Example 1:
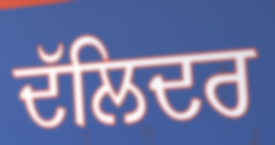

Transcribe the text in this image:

ਦੱਲਿਦਰ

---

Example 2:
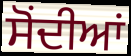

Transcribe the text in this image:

ਸੋਂਦੀਆਂ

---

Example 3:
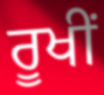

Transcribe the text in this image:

ਰੂਖੀਂ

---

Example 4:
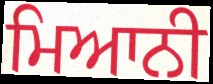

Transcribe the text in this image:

ਮਿਆਨੀ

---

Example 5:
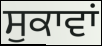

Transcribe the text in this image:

ਸੁਕਾਵਾਂ